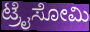
ಟ್ರೈಸೋಮಿ